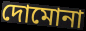
দোমোনা